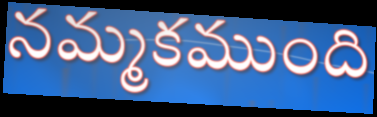
నమ్మకముంది